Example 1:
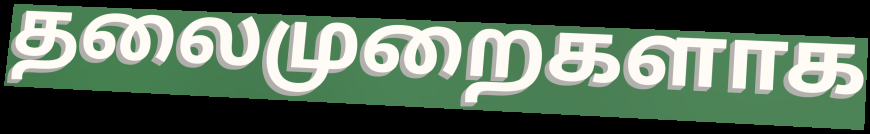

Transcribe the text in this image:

தலைமுறைகளாக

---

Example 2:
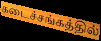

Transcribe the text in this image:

கடைச்சங்கத்தில்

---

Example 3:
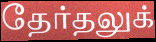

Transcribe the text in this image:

தேர்தலுக்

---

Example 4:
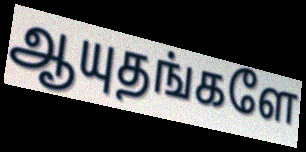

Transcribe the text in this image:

ஆயுதங்களே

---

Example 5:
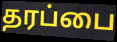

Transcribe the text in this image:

தரப்பை